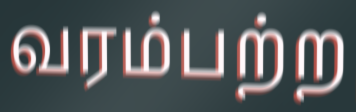
வரம்பற்ற